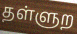
தள்ளுற